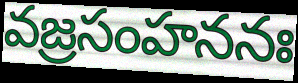
వజ్రసంహననః